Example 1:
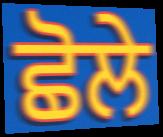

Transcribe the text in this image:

ਛੋਲੇ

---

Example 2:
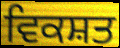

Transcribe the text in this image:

ਵਿਕਸ਼ਤ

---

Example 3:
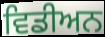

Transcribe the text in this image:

ਵਿਡੀਅਨ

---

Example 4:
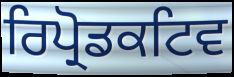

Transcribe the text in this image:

ਰਿਪ੍ਰੋਡਕਟਿਵ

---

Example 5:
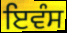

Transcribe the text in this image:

ਇਵੰਸ